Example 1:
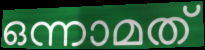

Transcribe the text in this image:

ഒന്നാമത്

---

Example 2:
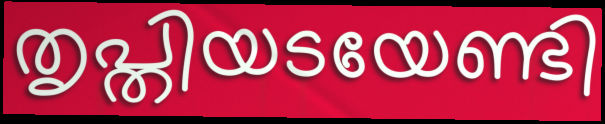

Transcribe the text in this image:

തൃപ്തിയടയേണ്ടി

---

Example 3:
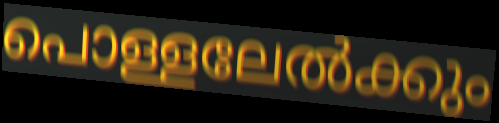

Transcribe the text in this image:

പൊള്ളലേൽക്കും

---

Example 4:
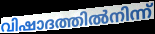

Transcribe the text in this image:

വിഷാദത്തിൽനിന്ന്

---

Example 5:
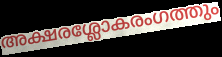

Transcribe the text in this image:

അക്ഷരശ്ലോകരംഗത്തും